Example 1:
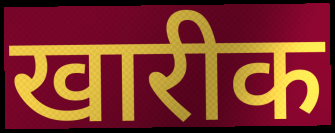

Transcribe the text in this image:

खारीक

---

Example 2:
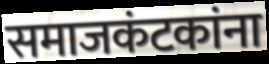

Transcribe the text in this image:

समाजकंटकांना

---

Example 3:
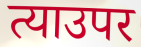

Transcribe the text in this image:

त्याउपर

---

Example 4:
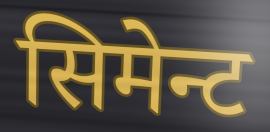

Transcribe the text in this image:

सिमेन्ट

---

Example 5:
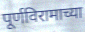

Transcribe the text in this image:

पूर्णविरामाच्या